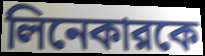
লিনেকারকে